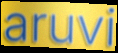
aruvi